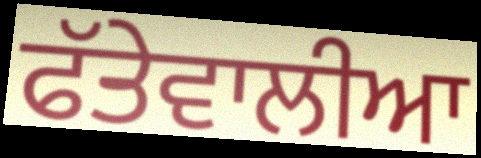
ਫੱਤੇਵਾਲੀਆ